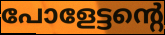
പോളേട്ടന്റെ